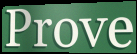
Prove